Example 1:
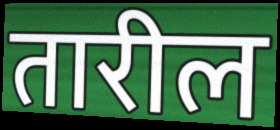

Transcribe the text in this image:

तारील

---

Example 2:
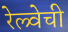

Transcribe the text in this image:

रेल्वेची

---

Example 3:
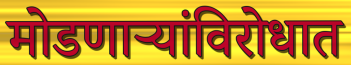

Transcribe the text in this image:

मोडणाऱ्यांविरोधात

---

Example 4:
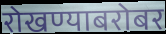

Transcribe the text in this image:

रोखण्याबरोबर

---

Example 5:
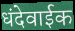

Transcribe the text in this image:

धंदेवाईक